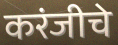
करंजीचे